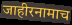
जाहीरनामाच